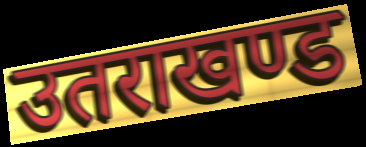
उतराखण्ड